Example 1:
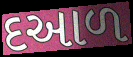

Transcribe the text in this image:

દઆળ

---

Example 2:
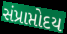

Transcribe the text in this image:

સંપ્રાપ્તોદય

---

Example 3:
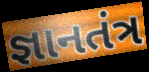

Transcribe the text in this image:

જ્ઞાનતંત્ર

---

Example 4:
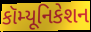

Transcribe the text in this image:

કૉમ્યૂનિકેશન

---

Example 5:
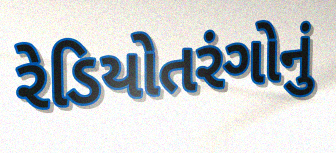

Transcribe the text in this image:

રેડિયોતરંગોનું